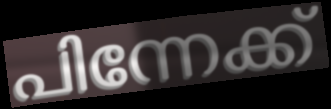
പിന്നേക്ക്